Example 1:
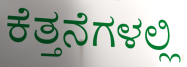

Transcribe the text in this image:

ಕೆತ್ತನೆಗಳಲ್ಲಿ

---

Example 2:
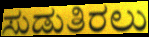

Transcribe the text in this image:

ಸುಡುತಿರಲು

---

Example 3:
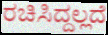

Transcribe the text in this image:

ರಚಿಸಿದ್ದಲ್ಲದೆ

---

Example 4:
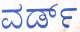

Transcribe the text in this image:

ವರ್ಡ್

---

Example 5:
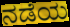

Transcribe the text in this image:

ನಡೆಯ